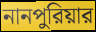
নানপুরিয়ার